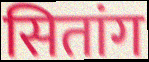
सितांग